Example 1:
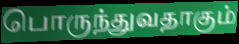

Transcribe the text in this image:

பொருந்துவதாகும்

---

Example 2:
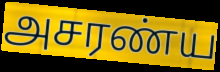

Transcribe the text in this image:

அசரண்ய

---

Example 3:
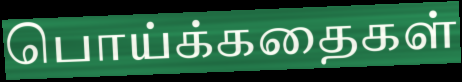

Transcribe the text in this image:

பொய்க்கதைகள்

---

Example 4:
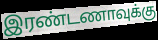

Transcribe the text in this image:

இரண்டணாவுக்கு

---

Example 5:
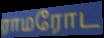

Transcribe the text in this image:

ராமரோட